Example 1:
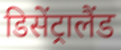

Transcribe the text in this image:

डिसेंट्रालैंड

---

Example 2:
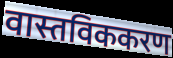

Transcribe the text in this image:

वास्तविककरण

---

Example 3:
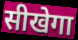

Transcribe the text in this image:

सीखेगा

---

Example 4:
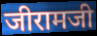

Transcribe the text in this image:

जीरामजी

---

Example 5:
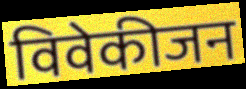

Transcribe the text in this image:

विवेकीजन